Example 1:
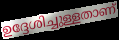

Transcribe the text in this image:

ഉദ്ദേശിച്ചുള്ളതാണ്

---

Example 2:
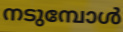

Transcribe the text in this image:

നടുമ്പോൾ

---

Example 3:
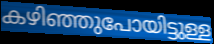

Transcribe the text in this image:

കഴിഞ്ഞുപോയിട്ടുള്ള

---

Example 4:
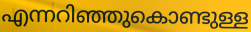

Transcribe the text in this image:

എന്നറിഞ്ഞുകൊണ്ടുള്ള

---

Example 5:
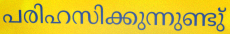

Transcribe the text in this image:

പരിഹസിക്കുന്നുണ്ടു്